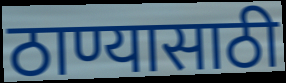
ठाण्यासाठी